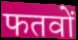
फतवों